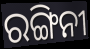
ରଙ୍ଗିନୀ